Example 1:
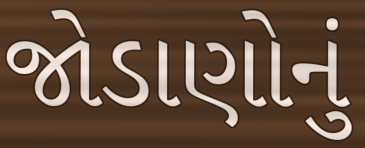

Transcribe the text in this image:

જોડાણોનું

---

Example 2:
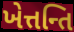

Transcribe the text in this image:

ખેત્તન્તિ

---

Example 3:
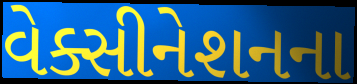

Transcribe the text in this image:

વેક્સીનેશનના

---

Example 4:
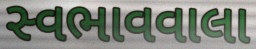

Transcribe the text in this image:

સ્વભાવવાલા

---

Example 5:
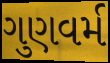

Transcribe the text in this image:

ગુણવર્મ